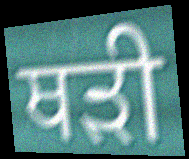
ਥੜੀ